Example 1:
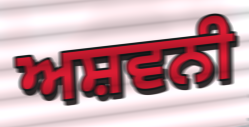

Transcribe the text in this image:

ਅਸ਼ਵਨੀ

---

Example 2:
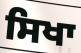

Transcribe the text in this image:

ਸਿਖਾ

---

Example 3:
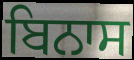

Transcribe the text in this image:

ਬਿਨਾਸ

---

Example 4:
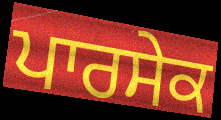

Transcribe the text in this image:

ਪਾਰਸੇਕ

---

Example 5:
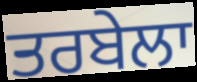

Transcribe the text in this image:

ਤਰਬੇਲਾ